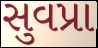
સુવપ્રા